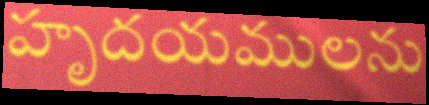
హృదయములను